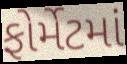
ફોર્મેટમાં